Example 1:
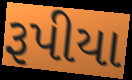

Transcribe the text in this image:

રૂપીયા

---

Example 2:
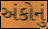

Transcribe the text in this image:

અંકોનું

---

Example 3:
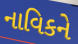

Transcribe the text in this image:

નાવિકને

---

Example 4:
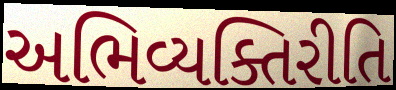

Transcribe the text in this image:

અભિવ્યક્તિરીતિ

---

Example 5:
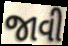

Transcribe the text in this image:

જાવી